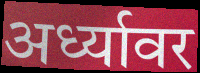
अर्ध्यावर